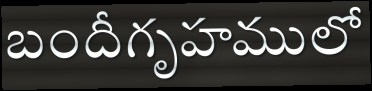
బందీగృహములో